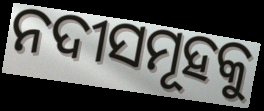
ନଦୀସମୂହକୁ